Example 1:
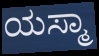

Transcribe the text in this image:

ಯಸ್ಮಾ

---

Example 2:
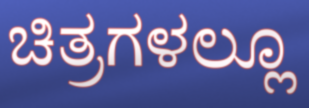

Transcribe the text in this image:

ಚಿತ್ರಗಳಲ್ಲೂ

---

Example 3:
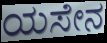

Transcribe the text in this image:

ಯಸೇನ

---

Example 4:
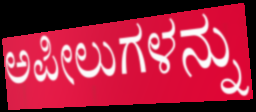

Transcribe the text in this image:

ಅಪೀಲುಗಳನ್ನು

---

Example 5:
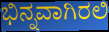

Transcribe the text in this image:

ಭಿನ್ನವಾಗಿರಲಿ